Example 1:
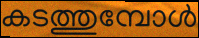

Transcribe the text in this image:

കടത്തുമ്പോൾ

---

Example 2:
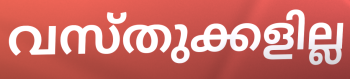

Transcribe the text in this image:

വസ്തുക്കളില്ല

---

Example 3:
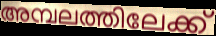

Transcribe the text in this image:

അമ്പലത്തിലേക്ക്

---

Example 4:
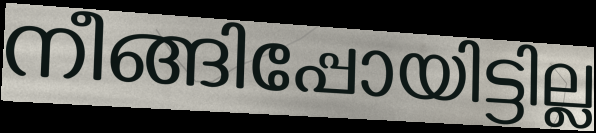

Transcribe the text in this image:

നീങ്ങിപ്പോയിട്ടില്ല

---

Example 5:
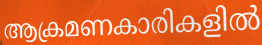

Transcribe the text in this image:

ആക്രമണകാരികളിൽ